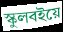
স্কুলবইয়ে